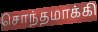
சொந்தமாக்கி